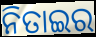
ନିତାଇର